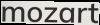
mozart